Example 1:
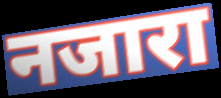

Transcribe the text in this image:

नजारा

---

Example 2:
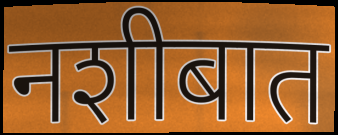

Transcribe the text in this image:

नशीबात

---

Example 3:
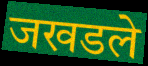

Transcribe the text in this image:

जखडले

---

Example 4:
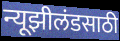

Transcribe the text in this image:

न्यूझीलंडसाठी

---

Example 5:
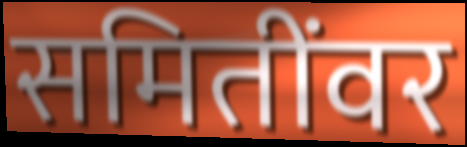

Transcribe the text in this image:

समितींवर